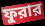
ফুরার